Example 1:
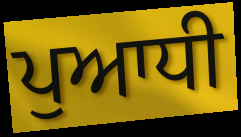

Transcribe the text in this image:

ਪੁਆਧੀ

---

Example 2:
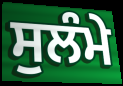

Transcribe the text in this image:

ਸੁਲੰਮੇ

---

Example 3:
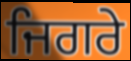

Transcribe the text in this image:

ਜਿਗਰੇ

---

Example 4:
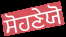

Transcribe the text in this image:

ਸੋਹਣੇਯੋ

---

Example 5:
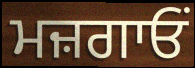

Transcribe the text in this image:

ਮਜ਼ਗਾਓਂ